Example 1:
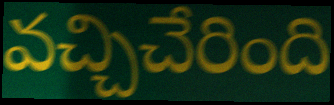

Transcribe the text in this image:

వచ్చిచేరింది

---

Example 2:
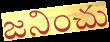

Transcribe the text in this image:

జనించు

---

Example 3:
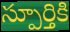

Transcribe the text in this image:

స్పూర్తికి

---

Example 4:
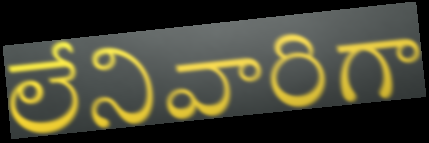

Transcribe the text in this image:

లేనివారిగా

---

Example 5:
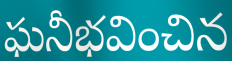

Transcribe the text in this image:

ఘనీభవించిన